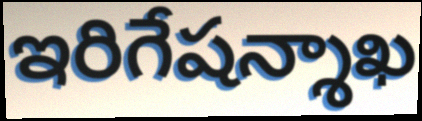
ఇరిగేషన్శాఖ